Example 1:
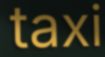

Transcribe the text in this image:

taxi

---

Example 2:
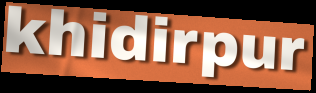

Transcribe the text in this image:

khidirpur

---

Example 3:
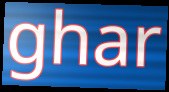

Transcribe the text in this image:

ghar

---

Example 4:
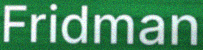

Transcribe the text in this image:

Fridman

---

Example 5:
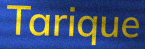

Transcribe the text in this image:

Tarique